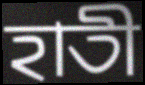
হাতী